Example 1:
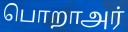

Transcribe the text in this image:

பொறாஅர்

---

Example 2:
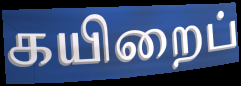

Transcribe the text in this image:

கயிறைப்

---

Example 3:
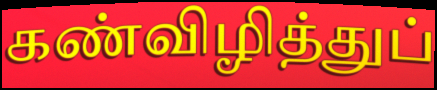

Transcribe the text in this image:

கண்விழித்துப்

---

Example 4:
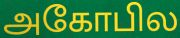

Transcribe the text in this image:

அகோபில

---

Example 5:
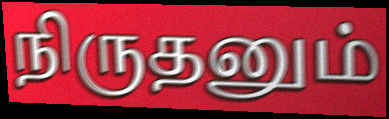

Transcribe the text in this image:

நிருதனும்